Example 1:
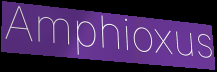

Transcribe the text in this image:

Amphioxus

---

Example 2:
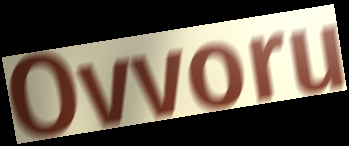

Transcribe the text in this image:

Ovvoru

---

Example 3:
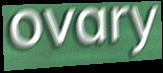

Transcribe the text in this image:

ovary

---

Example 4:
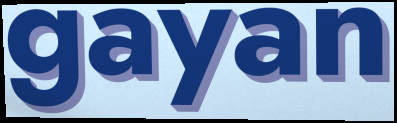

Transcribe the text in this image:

gayan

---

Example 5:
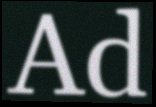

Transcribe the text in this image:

Ad